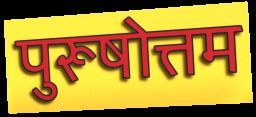
पुरूषोत्तम